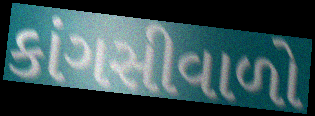
કાંગસીવાળો